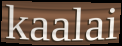
kaalai